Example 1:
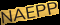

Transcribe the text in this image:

NAEPP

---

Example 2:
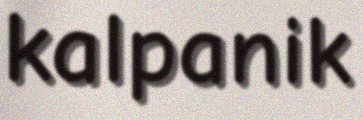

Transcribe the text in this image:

kalpanik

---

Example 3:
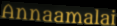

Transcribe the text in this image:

Annaamalai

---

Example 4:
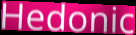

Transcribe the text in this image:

Hedonic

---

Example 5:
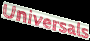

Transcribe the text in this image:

Universals